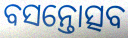
ବସନ୍ତୋତ୍ସବ